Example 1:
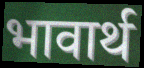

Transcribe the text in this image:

भावार्थ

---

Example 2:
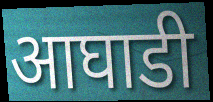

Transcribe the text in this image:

आघाडी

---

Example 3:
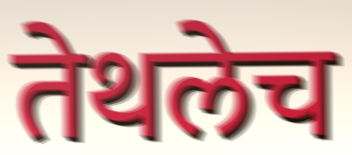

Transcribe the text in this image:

तेथलेच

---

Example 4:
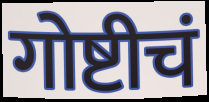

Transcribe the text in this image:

गोष्टीचं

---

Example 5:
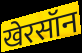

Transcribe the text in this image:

खेरसॉन